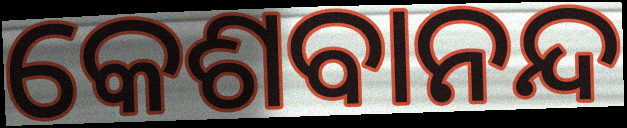
କେଶବାନନ୍ଦ